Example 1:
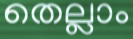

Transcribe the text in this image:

തെല്ലാം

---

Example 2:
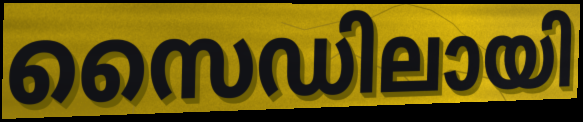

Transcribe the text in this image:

സൈഡിലായി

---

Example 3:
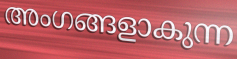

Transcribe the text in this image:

അംഗങ്ങളാകുന്ന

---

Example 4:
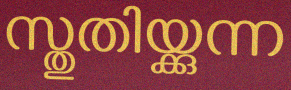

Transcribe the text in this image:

സ്തുതിയ്ക്കുന്ന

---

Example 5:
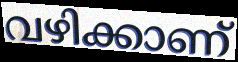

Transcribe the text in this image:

വഴിക്കാണ്